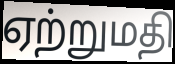
ஏற்றுமதி